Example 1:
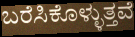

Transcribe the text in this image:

ಬರೆಸಿಕೊಳ್ಳುತ್ತವೆ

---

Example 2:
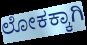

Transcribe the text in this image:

ಲೋಕಕ್ಕಾಗಿ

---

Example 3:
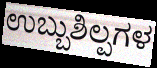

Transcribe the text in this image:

ಉಬ್ಬುಶಿಲ್ಪಗಳ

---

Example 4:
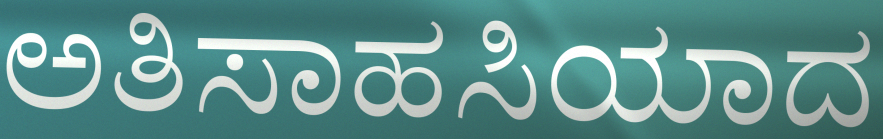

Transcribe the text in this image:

ಅತಿಸಾಹಸಿಯಾದ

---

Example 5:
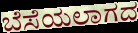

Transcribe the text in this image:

ಬೆಸೆಯಲಾಗದ